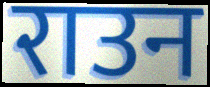
राउन